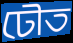
ঢৌত